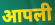
आपली